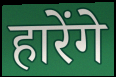
हारेंगे